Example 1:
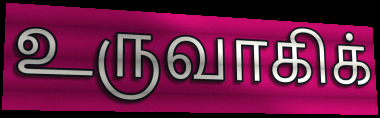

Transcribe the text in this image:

உருவாகிக்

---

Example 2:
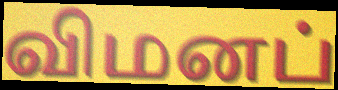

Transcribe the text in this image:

விமனப்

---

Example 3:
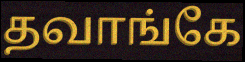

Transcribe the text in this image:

தவாங்கே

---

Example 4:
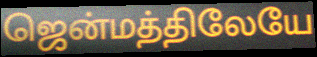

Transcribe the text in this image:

ஜென்மத்திலேயே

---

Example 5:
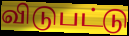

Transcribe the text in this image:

விடுபட்டு